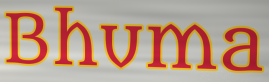
Bhuma